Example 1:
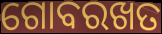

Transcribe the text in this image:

ଗୋବରଖତ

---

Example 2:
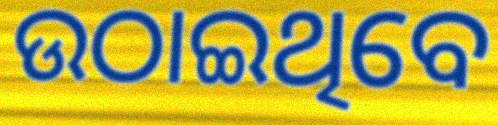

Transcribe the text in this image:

ଉଠାଇଥିବେ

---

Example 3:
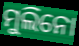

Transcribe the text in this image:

ମୁଲିନୋ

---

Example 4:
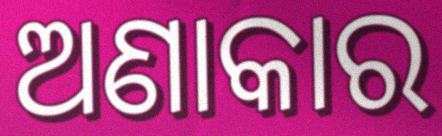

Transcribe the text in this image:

ଅଣାକାର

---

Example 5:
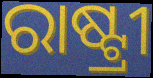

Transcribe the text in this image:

ରାଷ୍ଟ୍ରୀ